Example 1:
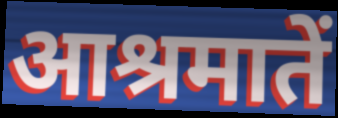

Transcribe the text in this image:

आश्रमातें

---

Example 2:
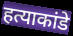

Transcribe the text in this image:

हत्याकांडे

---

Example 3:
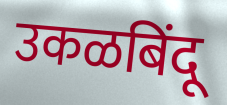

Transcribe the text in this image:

उकळबिंदू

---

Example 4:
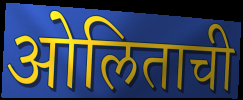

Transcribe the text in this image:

ओलिताची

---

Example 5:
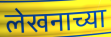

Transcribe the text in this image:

लेखनाच्या